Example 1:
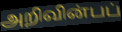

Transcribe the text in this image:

அறிவின்பப்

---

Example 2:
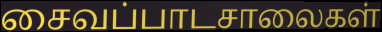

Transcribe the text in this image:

சைவப்பாடசாலைகள்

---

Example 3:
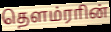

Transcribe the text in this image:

தௌம்ரரின்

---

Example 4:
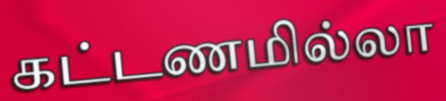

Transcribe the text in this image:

கட்டணமில்லா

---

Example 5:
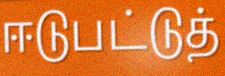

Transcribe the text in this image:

ஈடுபட்டுத்